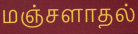
மஞ்சளாதல்